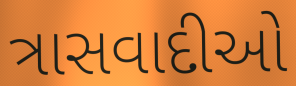
ત્રાસવાદીઓ